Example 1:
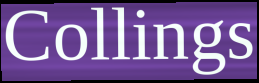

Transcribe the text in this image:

Collings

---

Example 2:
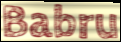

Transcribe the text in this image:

Babru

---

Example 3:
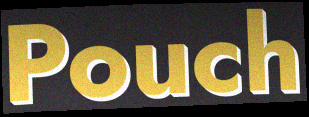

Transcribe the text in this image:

Pouch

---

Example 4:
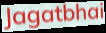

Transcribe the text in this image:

Jagatbhai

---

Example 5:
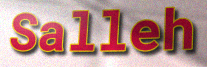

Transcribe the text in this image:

Salleh